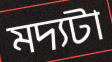
মদ্যটা